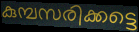
കുമ്പസരിക്കട്ടെ